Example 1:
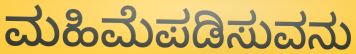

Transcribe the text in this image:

ಮಹಿಮೆಪಡಿಸುವನು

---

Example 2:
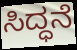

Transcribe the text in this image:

ಸಿದ್ಧನೆ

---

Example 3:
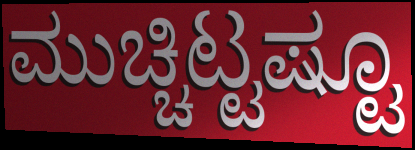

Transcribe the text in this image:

ಮುಚ್ಚಿಟ್ಟಷ್ಟೂ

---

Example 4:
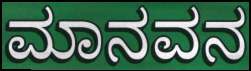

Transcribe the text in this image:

ಮಾನವನ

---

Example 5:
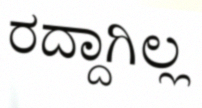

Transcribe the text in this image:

ರದ್ದಾಗಿಲ್ಲ